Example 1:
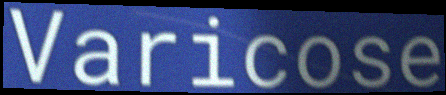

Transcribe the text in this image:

Varicose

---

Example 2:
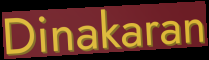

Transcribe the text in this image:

Dinakaran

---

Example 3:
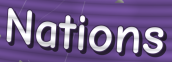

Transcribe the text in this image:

Nations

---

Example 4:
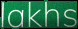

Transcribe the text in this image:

lakhs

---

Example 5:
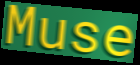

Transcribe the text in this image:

Muse